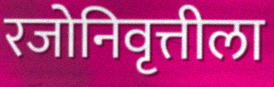
रजोनिवृत्तीला